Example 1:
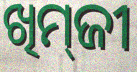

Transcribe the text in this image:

ଖିମ୍‌ଜୀ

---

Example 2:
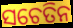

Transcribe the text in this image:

ସଚେତିନ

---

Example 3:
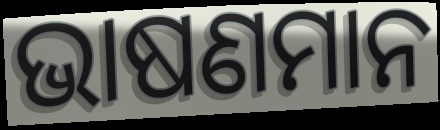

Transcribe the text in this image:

ଭାଷଣମାନ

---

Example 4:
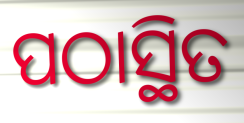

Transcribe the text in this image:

ପଠାସ୍ଥିତ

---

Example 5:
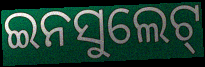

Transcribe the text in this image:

ଇନସୁଲେଟ୍